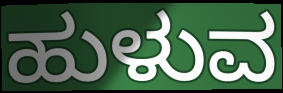
ಹುಳುವ